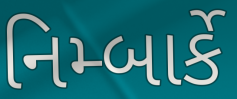
નિમ્બાર્કે